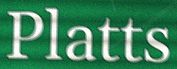
Platts